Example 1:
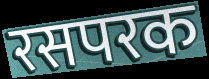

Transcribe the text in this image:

रसपरक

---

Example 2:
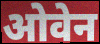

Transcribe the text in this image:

ओवेन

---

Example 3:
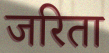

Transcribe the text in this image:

जरिता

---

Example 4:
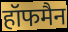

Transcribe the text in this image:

हॉफमैन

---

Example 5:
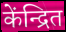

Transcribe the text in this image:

केंन्द्रित